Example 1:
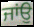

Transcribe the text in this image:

ਜਾਂਉ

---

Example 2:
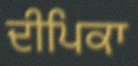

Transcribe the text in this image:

ਦੀਪਿਕਾ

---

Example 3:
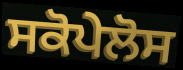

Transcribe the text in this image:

ਸਕੋਪੇਲੋਸ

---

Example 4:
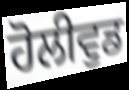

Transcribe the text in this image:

ਹੋਲੀਵੁਡ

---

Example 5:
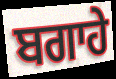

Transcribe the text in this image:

ਬਗਾਹੇ